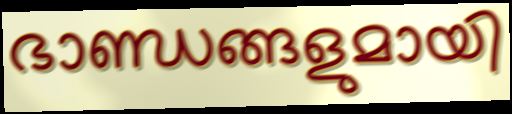
ഭാണ്ഡങ്ങളുമായി